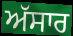
ਅੱਸਾਰ